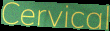
Cervical